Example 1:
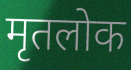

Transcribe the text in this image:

मृतलोक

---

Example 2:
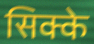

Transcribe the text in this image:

सिक्के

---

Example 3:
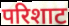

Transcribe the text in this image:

परिशाट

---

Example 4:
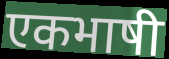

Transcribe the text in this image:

एकभाषी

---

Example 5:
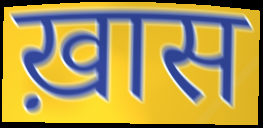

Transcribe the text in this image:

ख़ास